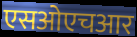
एसओएचआर